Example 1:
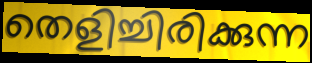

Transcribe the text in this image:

തെളിച്ചിരിക്കുന്ന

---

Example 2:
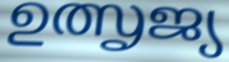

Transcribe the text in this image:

ഉത്സൃജ്യ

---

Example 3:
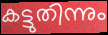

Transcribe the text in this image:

കട്ടുതിന്നും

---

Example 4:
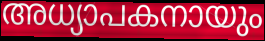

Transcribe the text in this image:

അധ്യാപകനായും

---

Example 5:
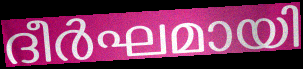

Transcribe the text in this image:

ദീർഘമായി